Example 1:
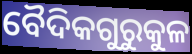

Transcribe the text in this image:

ବୈଦିକଗୁରୁକୁଳ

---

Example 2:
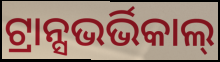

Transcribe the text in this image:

ଟ୍ରାନ୍ସଭର୍ଭିକାଲ୍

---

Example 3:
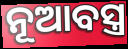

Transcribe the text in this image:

ନୂଆବସ୍ତ୍ର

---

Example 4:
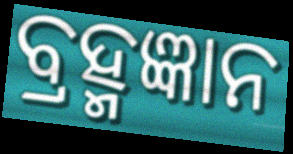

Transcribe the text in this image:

ବ୍ରହ୍ମଜ୍ଞାନ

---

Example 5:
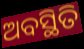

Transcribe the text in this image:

ଅବସ୍ଥିତି